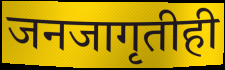
जनजागृतीही